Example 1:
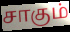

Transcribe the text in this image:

சாகும்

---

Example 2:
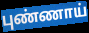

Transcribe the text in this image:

புண்ணாய்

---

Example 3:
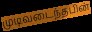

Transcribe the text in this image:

முடிவடைந்தபின்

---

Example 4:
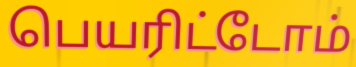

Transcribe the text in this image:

பெயரிட்டோம்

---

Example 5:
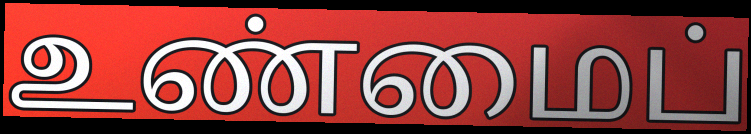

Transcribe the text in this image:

உண்மைப்